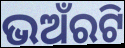
ଭଅଁରଟି